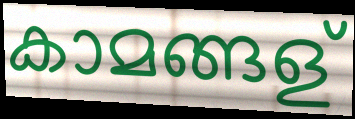
കാമങ്ങള്